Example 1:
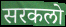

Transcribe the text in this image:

सरकलो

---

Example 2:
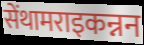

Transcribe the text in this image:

सेंथामराइकन्नन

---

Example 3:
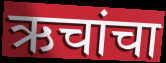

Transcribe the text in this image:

ऋचांचा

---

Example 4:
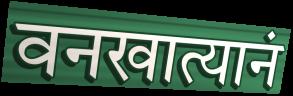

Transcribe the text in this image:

वनखात्यानं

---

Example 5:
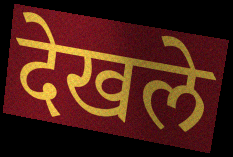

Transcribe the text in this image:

देखले